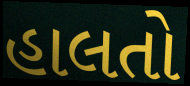
હાલતો